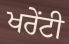
ਖਰੇਂਟੀ